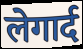
लेगार्द